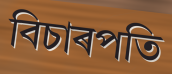
বিচাৰপতি